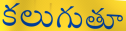
కలుగుతూ